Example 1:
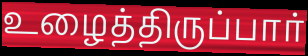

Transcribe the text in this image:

உழைத்திருப்பார்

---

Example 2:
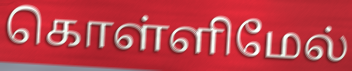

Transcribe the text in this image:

கொள்ளிமேல்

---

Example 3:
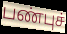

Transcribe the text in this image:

பண்புச்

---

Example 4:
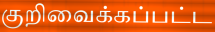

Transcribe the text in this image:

குறிவைக்கப்பட்ட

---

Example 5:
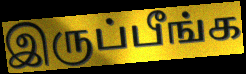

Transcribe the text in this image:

இருப்பீங்க